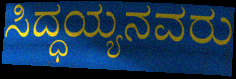
ಸಿದ್ಧಯ್ಯನವರು